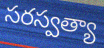
సరస్వత్యా